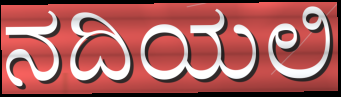
ನದಿಯಲಿ